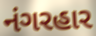
નંગરહાર